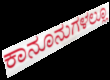
ಕಾನೂನುಗಳಲ್ಲೂ